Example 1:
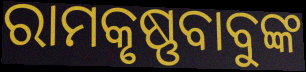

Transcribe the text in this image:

ରାମକୃଷ୍ଣବାବୁଙ୍କ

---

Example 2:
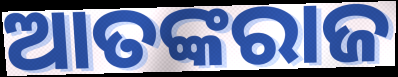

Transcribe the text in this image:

ଆତଙ୍କରାଜ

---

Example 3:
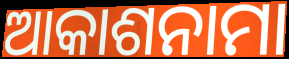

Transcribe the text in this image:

ଆକାଶନାମା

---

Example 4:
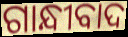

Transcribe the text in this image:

ଗାନ୍ଧୀବାଦ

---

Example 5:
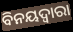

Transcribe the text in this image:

ବିନୟଦ୍ବାରା